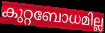
കുറ്റബോധമില്ല